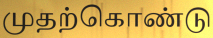
முதற்கொண்டு